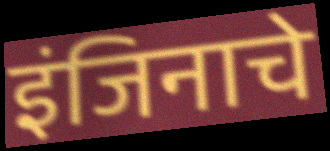
इंजिनाचे